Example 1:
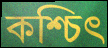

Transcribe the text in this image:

কশ্চিৎ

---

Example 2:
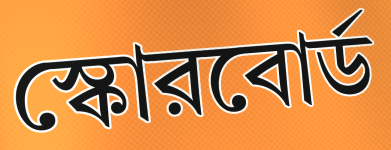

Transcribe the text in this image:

স্কোরবোর্ড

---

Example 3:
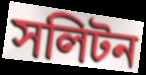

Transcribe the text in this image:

সলিটন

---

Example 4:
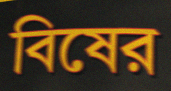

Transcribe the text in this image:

বিষের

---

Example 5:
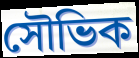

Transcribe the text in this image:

সৌভিক